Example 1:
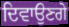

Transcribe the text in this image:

ਦਿਵਾਉਣਗੇ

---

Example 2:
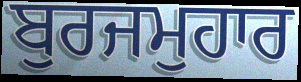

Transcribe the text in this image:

ਬੁਰਜਮੁਹਾਰ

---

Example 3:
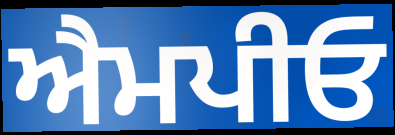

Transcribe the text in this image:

ਐਮਪੀਓ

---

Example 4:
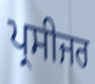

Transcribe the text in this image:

ਪ੍ਰਸੀਜਰ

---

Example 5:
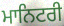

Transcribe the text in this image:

ਮਾਨਿਟਰੀ